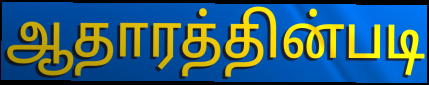
ஆதாரத்தின்படி